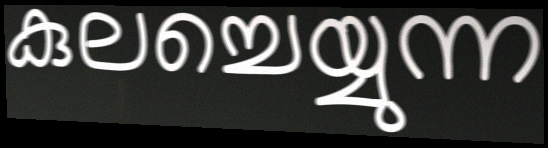
കുലച്ചെയ്യുന്ന